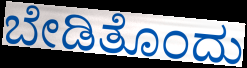
ಬೇಡಿತೊಂದು